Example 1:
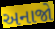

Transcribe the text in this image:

અનાજો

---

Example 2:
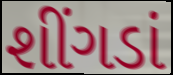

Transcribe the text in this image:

શીંગડાં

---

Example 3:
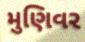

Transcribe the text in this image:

મુણિવર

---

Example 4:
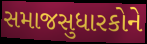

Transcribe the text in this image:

સમાજસુધારકોને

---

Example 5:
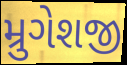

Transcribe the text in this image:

મ્રુગેશજી